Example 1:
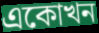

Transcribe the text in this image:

একোখন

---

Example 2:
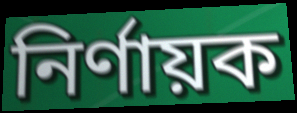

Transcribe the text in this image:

নিৰ্ণায়ক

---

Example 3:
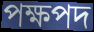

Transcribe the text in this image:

পক্ষপদ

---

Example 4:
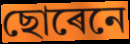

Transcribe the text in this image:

ছোৰেনে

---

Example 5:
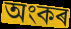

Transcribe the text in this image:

অংকৰ